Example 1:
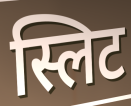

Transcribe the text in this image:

स्लिट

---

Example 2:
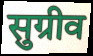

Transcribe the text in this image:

सुग्रीव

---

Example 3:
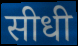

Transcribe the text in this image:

सीधी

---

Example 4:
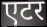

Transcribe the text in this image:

एटर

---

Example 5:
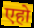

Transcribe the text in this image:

एहो